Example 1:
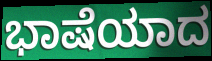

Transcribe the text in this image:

ಭಾಷೆಯಾದ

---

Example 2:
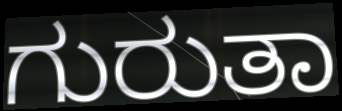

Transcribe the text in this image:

ಗುರುತಾ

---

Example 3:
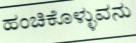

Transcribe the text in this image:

ಹಂಚಿಕೊಳ್ಳುವನು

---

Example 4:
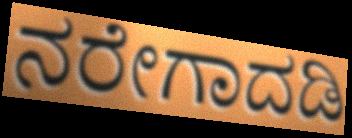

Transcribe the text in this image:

ನರೇಗಾದಡಿ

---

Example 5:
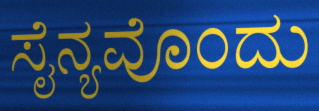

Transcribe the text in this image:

ಸೈನ್ಯವೊಂದು